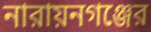
নারায়নগঞ্জের